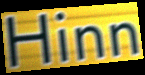
Hinn